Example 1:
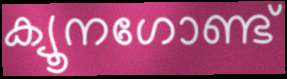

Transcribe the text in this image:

ക്യൂനഗോണ്ട്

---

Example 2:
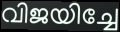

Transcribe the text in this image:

വിജയിച്ചേ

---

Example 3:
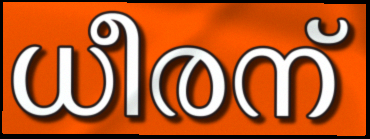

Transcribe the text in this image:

ധീരന്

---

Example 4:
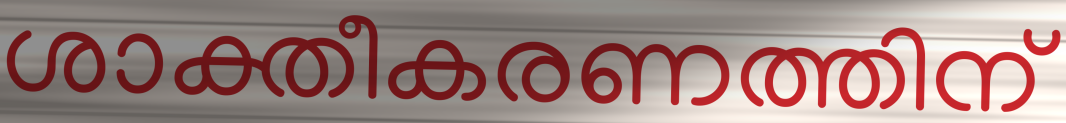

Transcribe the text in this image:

ശാക്തീകരണത്തിന്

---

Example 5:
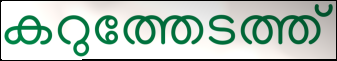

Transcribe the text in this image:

കറുത്തേടത്ത്